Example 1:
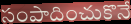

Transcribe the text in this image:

సంపాదించుకొనే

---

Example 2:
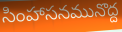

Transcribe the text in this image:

సింహాసనమునొద్ద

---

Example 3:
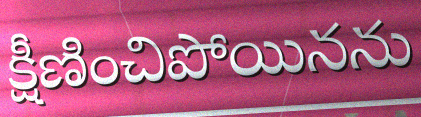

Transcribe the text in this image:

క్షీణించిపోయినను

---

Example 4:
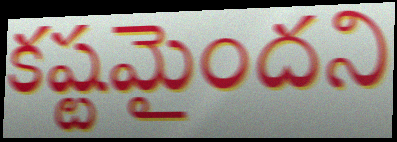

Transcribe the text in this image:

కష్టమైందని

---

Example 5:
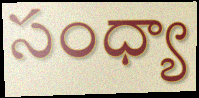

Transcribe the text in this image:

సంధ్యా